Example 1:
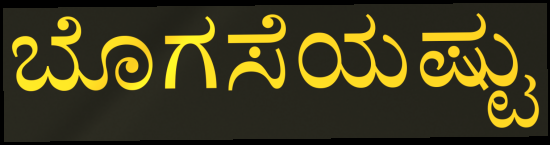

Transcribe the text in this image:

ಬೊಗಸೆಯಷ್ಟು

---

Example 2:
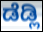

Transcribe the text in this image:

ಡೆಡ್ಲಿ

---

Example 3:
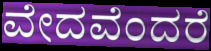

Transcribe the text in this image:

ವೇದವೆಂದರೆ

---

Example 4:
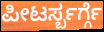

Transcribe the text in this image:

ಪೀಟರ್ಸ್ಬರ್ಗ್ಗೆ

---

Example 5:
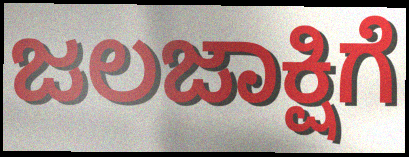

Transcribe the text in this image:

ಜಲಜಾಕ್ಷಿಗೆ